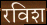
रविश